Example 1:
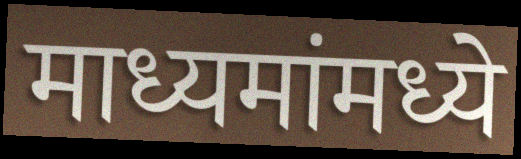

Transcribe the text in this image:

माध्यमांमध्ये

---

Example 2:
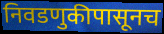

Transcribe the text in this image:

निवडणुकीपासूनच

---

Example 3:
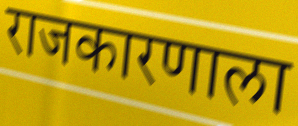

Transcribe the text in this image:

राजकारणाला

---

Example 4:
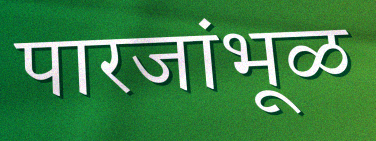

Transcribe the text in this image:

पारजांभूळ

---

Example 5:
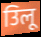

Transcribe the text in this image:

उिलू